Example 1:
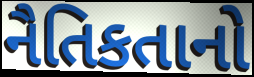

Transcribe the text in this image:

નૈતિકતાનો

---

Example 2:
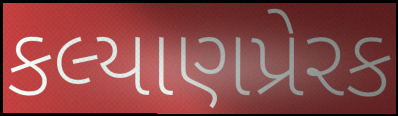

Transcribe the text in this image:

કલ્યાણપ્રેરક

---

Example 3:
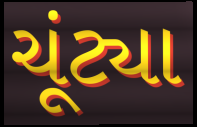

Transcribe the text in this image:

ચૂંટ્યા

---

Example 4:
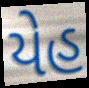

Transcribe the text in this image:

યેહ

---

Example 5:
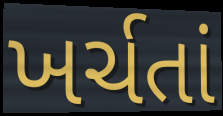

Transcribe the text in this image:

ખર્ચતાં